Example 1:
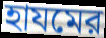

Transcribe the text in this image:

হাযমের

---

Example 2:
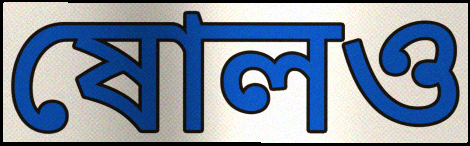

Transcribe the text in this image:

ষোলও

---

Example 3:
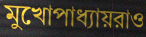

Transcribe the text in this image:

মুখোপাধ্যায়রাও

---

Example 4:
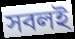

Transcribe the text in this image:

সবলই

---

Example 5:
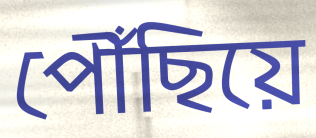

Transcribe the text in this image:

পৌঁছিয়ে